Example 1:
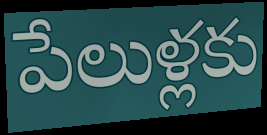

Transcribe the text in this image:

పేలుళ్లకు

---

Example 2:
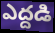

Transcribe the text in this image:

ఎద్దడి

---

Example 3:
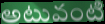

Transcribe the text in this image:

అటువంటి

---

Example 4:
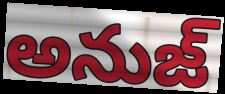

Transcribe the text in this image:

అనుజ్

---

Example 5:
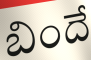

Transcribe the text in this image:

బిందే